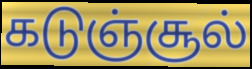
கடுஞ்சூல்